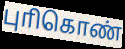
புரிகொண்